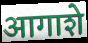
आगाशे